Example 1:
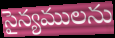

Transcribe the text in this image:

సైన్యములను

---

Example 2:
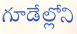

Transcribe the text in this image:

గూడేల్లోని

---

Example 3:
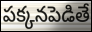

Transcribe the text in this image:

పక్కనపెడితే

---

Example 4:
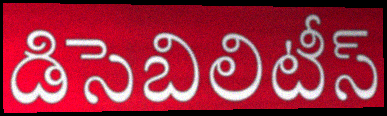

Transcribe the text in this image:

డిసెబిలిటీస్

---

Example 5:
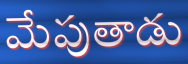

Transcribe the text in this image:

మేపుతాడు